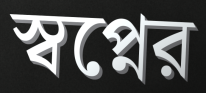
স্বপ্নের